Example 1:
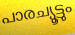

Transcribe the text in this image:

പാരച്യൂട്ടും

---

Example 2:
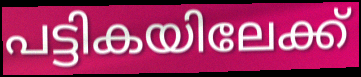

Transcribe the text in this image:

പട്ടികയിലേക്ക്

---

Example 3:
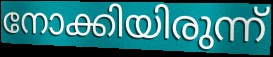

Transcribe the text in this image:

നോക്കിയിരുന്ന്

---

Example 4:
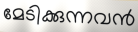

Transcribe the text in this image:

മേടിക്കുന്നവൻ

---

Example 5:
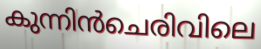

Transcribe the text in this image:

കുന്നിൻചെരിവിലെ